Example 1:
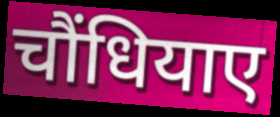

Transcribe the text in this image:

चौंधियाए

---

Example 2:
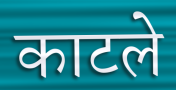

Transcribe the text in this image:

काटले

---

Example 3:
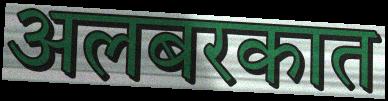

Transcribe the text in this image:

अलबरकात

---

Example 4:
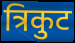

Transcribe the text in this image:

त्रिकुट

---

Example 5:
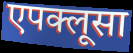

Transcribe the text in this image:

एपक्लूसा